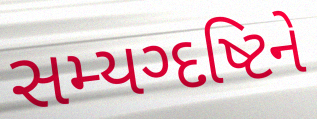
સમ્યગ્દષ્ટિને